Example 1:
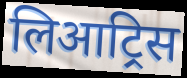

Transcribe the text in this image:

लिआट्रिस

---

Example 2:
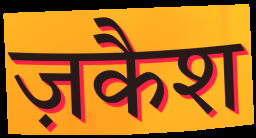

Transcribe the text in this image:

ज़कैश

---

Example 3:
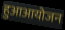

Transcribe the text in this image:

हुआआयोजन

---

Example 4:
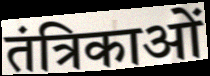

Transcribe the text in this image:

तंत्रिकाओं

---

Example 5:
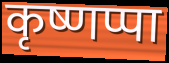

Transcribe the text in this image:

कृष्‍णप्‍पा